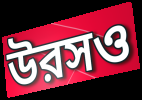
উরসও